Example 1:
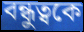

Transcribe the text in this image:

বন্ধুত্বকে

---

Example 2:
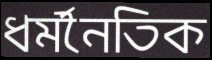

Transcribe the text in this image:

ধর্মনৈতিক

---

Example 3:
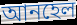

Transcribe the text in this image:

আনহেল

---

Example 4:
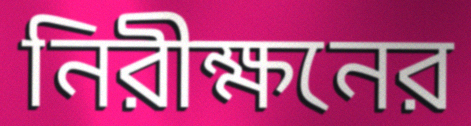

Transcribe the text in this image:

নিরীক্ষনের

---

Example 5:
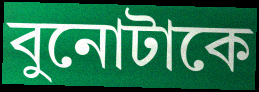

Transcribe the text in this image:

বুনোটাকে